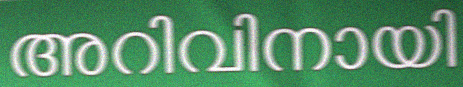
അറിവിനായി